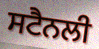
ਸਟੈਨਲੀ